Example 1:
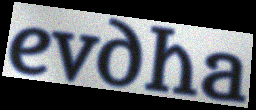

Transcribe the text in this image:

evdha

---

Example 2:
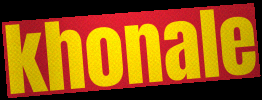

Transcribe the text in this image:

khonale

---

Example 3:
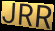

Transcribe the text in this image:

JRR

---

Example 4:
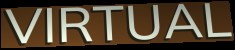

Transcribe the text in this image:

VIRTUAL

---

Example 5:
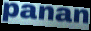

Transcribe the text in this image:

panan